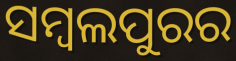
ସମ୍ୱଲପୁରର